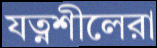
যত্নশীলেরা